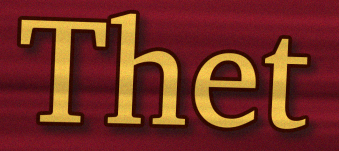
Thet